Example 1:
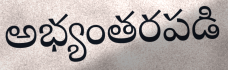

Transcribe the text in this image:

అభ్యంతరపడి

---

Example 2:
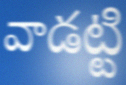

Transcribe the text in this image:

వాడట్టి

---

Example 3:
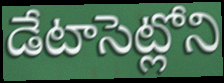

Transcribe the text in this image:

డేటాసెట్లోని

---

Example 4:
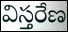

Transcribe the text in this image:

విస్తరేణ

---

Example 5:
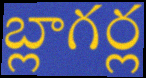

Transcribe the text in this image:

బ్లాగర్ల